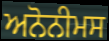
ਅਨੋਨੀਮਸ